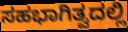
ಸಹಭಾಗಿತ್ವದಲ್ಲಿ